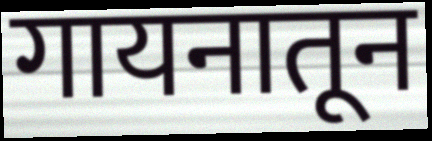
गायनातून